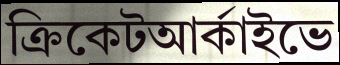
ক্রিকেটআর্কাইভে